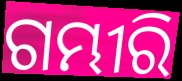
ଗମ୍ଭୀରି